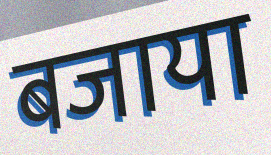
बजाया